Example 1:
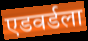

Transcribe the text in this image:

एडवर्डला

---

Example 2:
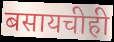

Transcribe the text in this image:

बसायचीही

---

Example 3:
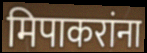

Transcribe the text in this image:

मिपाकरांना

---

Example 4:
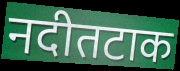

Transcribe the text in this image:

नदीतटाक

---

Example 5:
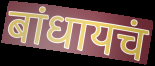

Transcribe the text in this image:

बांधायचं